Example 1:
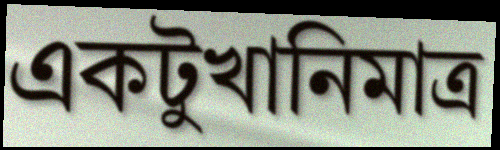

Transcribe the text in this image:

একটুখানিমাত্র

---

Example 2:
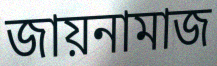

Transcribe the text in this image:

জায়নামাজ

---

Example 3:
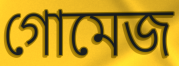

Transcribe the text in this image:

গোমেজ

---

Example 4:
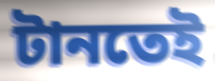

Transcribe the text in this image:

টানতেই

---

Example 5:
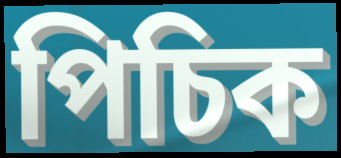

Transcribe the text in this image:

পিচিক